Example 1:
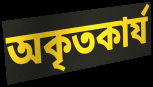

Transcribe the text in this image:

অকৃতকাৰ্য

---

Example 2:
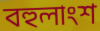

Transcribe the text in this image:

বহুলাংশ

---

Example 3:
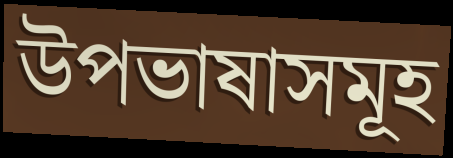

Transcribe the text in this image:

উপভাষাসমূহ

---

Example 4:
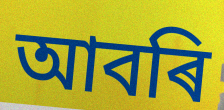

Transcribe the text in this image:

আবৰি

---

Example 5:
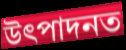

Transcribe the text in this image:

উৎপাদনত